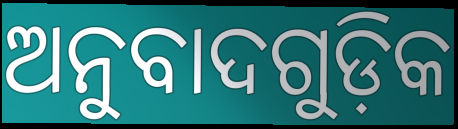
ଅନୁବାଦଗୁଡ଼ିକ